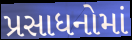
પ્રસાધનોમાં